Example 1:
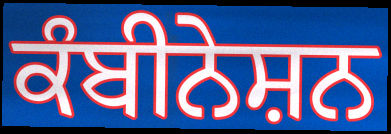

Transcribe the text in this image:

ਕੰਬੀਨੇਸ਼ਨ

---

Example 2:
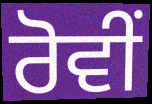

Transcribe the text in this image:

ਰੋਵੀਂ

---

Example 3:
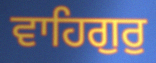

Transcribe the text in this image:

ਵਾਹਿਗੁਰੁ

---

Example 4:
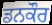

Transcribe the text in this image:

ਡਨਕੌਰ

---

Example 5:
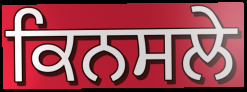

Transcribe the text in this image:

ਕਿਨਸਲੇ